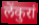
लेंकुरां